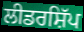
ਲੀਡਰਸ਼ਿੱਪ